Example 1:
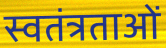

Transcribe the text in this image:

स्वतंत्रताओं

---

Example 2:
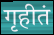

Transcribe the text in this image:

गृहीतं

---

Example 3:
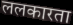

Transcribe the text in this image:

ललकारता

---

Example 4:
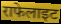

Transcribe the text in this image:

राफेलाइट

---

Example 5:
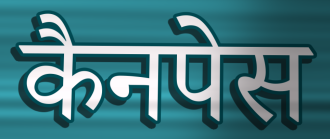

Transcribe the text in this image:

कैनपेस